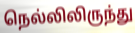
நெல்லிலிருந்து